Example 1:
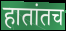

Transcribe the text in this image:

हातांतच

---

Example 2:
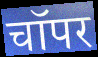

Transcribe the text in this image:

चॉपर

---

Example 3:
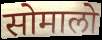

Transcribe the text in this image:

सोमालो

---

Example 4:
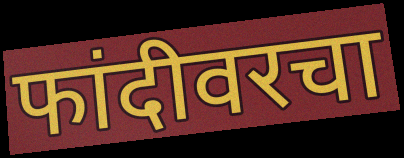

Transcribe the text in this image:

फांदीवरचा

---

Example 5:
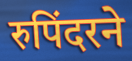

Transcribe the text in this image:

रुपिंदरने